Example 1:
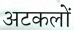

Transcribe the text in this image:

अटकलों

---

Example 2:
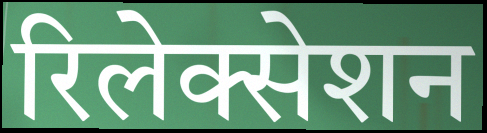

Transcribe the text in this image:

रिलेक्सेशन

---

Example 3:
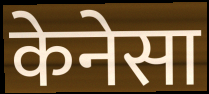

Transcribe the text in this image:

केनेसा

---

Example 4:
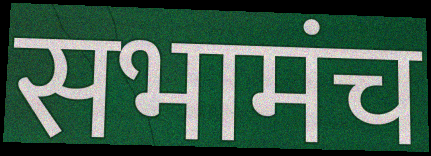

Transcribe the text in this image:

सभामंच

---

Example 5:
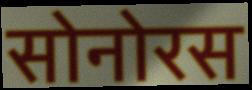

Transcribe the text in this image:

सोनोरस